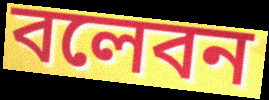
বলেবন